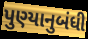
પુણ્યાનુબંધી